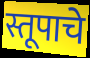
स्तूपाचे